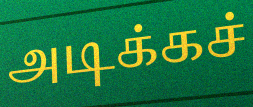
அடிக்கச்